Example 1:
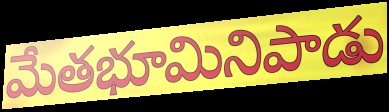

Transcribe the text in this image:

మేతభూమినిపాడు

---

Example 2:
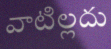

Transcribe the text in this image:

వాటిల్లదు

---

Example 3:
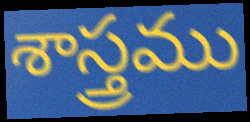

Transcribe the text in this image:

శాస్త్రము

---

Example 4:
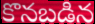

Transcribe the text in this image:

కొనబడిన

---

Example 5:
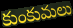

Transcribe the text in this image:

కుంకుమలు